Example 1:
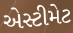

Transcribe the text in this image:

એસ્ટીમેટ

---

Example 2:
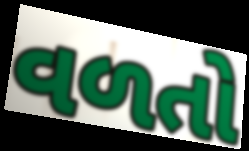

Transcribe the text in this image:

વળતો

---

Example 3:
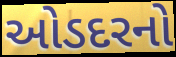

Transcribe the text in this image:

ઓડદરનો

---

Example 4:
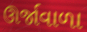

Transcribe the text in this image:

ઊર્જાવાળા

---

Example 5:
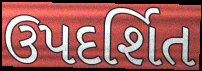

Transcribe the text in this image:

ઉપદર્શિત